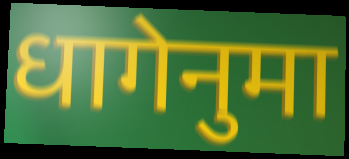
धागेनुमा